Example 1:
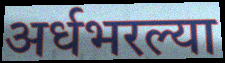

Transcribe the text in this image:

अर्धभरल्या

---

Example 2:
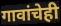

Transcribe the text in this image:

गावांचेही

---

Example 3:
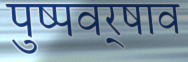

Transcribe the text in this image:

पुष्पवर्षाव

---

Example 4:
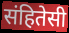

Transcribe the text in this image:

संहितेसी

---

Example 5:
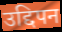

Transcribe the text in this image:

उद्दिपन